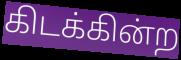
கிடக்கின்ற